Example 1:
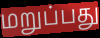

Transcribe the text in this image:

மறுப்பது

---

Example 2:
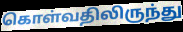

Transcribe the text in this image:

கொள்வதிலிருந்து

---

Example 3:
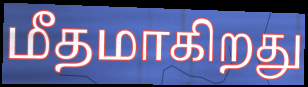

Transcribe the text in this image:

மீதமாகிறது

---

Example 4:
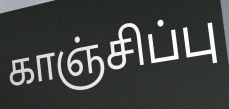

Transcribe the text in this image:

காஞ்சிப்பு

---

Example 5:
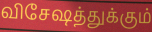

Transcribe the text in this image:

விசேஷத்துக்கும்